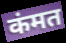
कंमत